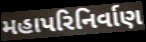
મહાપરિનિર્વાણ